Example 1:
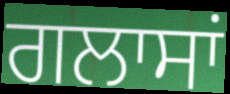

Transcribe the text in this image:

ਗਲਾਸਾਂ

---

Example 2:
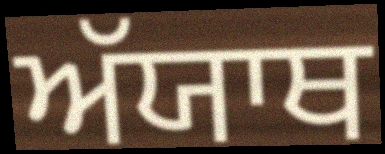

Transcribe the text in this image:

ਅੱਯਾਥ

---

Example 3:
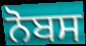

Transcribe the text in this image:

ਨੋਬਸ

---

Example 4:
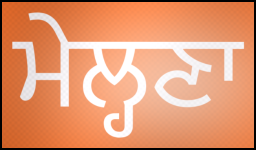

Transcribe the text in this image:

ਮੇਲ੍ਹਣਾ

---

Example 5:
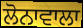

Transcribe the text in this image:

ਲੋਨਾਵਾਲਾ